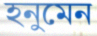
হনুমেন